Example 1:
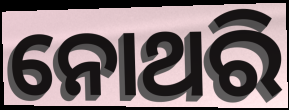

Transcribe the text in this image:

ନୋଥରି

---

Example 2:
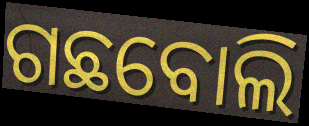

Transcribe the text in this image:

ଗଛବୋଲି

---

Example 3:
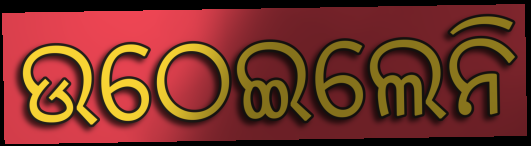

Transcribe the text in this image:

ଉଠେଇଲେନି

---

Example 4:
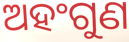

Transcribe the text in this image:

ଅହଂଗୁଣ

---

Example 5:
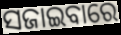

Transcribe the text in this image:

ସଜାଇବାରେ